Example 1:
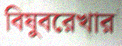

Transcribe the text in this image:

বিষুবরেখার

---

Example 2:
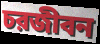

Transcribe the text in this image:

চরজীবন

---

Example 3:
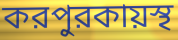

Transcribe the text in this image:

করপুরকায়স্থ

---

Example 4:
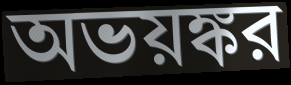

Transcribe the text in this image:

অভয়ঙ্কর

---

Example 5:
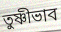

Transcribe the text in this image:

তুষ্ণীভাব